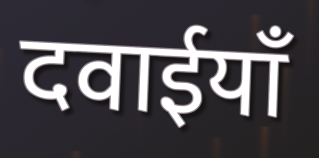
दवाईयाँ